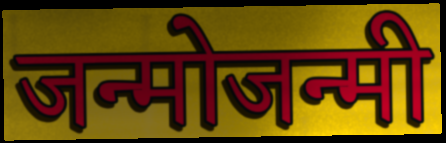
जन्मोजन्मी